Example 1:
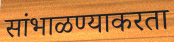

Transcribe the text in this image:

सांभाळण्याकरता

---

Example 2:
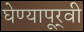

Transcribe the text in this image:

घेण्यापूर्वी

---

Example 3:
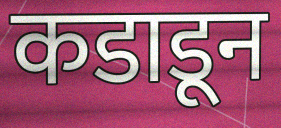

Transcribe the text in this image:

कडाडून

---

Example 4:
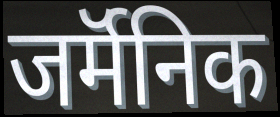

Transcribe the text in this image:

जर्मॅनिक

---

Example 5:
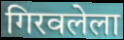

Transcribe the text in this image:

गिरवलेला